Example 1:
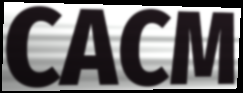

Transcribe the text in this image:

CACM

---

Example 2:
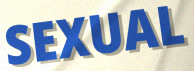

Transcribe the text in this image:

SEXUAL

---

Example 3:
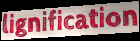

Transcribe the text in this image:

lignification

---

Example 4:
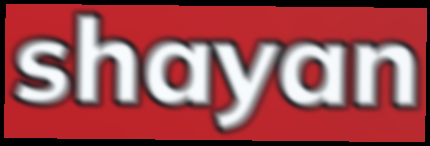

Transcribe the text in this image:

shayan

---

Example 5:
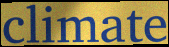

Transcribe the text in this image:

climate